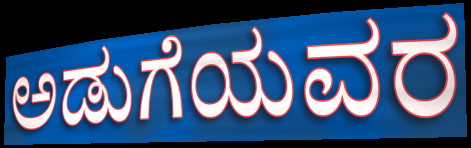
ಅಡುಗೆಯವರ